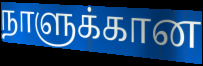
நாளுக்கான